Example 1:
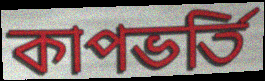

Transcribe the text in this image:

কাপভর্তি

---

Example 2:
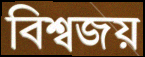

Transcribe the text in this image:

বিশ্বজয়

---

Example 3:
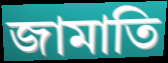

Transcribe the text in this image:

জামাতি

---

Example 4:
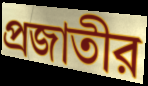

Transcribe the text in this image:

প্রজাতীর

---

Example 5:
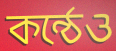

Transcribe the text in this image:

কন্ঠেও